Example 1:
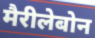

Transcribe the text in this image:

मैरीलेबोन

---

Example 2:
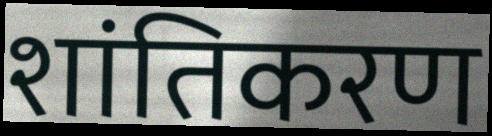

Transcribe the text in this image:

शांतिकरण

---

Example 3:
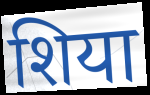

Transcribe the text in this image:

शिया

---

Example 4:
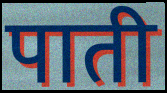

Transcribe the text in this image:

पाती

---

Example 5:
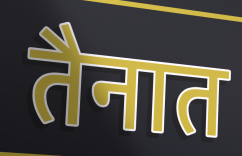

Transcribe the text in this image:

तैनात